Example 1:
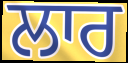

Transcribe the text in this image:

ਲਾਰ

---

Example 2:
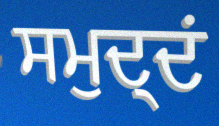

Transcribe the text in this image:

ਸਮੁਦ੍ਦਂ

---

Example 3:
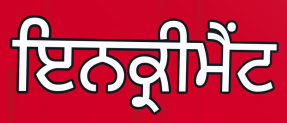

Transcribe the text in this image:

ਇਨਕ੍ਰੀਮੈਂਟ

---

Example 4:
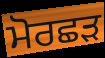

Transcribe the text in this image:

ਮੋਰਛੜ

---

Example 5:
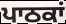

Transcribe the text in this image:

ਪਾਠਕਾਂ